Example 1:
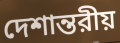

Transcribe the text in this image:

দেশান্তরীয়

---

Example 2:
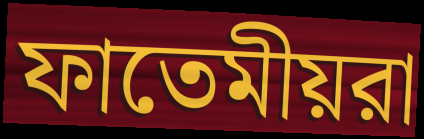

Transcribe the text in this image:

ফাতেমীয়রা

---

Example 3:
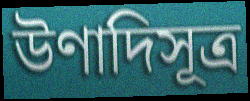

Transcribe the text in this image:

উণাদিসূত্র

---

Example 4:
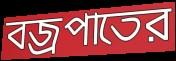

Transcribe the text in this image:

বজ্রপাতের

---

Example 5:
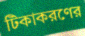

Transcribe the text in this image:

টিকাকরণের